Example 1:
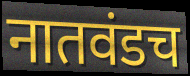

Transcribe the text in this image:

नातवंडच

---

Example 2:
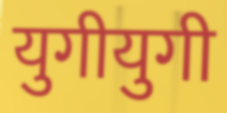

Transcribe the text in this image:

युगीयुगी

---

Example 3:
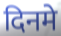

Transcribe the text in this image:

दिनमे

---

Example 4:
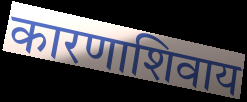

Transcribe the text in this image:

कारणाशिवाय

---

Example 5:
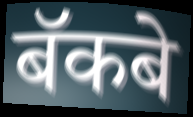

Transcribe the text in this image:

बॅकबे